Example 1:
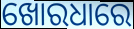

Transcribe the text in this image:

ଖୋରଧାରେ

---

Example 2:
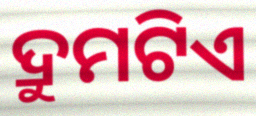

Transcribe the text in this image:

ଦ୍ରୁମଟିଏ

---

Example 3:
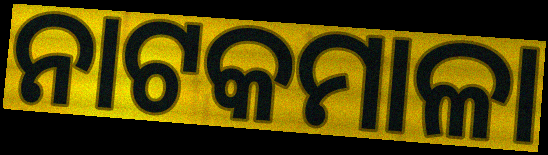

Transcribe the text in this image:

ନାଟକମାଳା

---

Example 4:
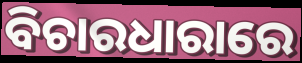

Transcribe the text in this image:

ବିଚାରଧାରାରେ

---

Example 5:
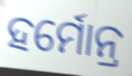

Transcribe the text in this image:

ହର୍ମୋନ୍ର